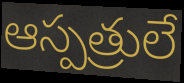
ఆస్పత్రులే